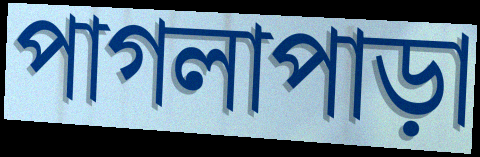
পাগলাপাড়া